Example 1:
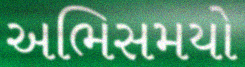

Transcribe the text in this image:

અભિસમયો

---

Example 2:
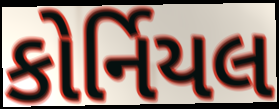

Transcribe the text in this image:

કોર્નિયલ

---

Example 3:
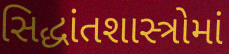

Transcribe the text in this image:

સિદ્ધાંતશાસ્ત્રોમાં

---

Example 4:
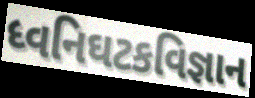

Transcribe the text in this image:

ધ્વનિઘટકવિજ્ઞાન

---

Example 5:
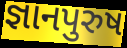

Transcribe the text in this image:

જ્ઞાનપુરુષ